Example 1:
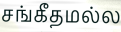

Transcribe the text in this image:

சங்கீதமல்ல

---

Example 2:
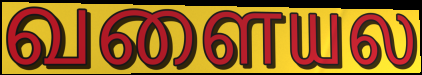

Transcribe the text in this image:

வளையல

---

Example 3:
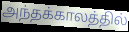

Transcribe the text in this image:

அந்தக்காலத்தில்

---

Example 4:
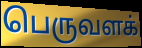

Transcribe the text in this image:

பெருவளக்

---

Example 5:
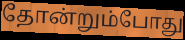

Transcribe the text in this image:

தோன்றும்போது